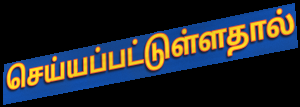
செய்யப்பட்டுள்ளதால்